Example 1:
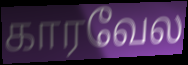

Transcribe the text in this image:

காரவேல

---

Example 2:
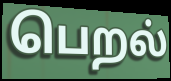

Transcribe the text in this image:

பெறல்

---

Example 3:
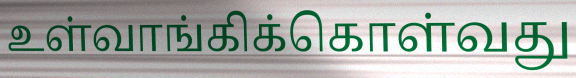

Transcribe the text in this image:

உள்வாங்கிக்கொள்வது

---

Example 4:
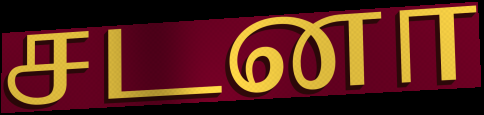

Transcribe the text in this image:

சடனா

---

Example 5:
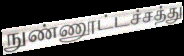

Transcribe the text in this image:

நுண்ணூட்டச்சத்து